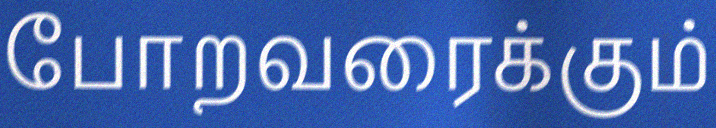
போறவரைக்கும்